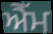
ਐੈੱਮ